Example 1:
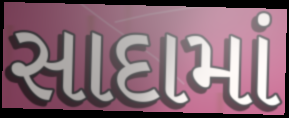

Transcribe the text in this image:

સાદામાં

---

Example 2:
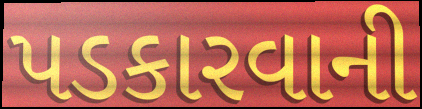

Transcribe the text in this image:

પડકારવાની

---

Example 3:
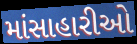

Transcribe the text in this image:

માંસાહારીઓ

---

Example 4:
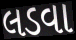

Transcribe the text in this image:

લડવા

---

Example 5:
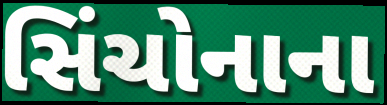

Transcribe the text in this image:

સિંચોનાના